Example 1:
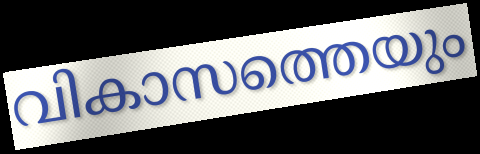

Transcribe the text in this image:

വികാസത്തെയും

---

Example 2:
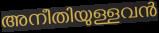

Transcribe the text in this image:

അനീതിയുള്ളവൻ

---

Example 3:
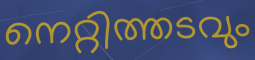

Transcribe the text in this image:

നെറ്റിത്തടവും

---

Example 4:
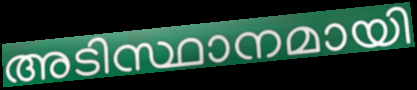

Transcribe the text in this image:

അടിസ്ഥാനമായി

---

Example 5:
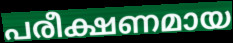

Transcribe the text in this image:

പരീക്ഷണമായ